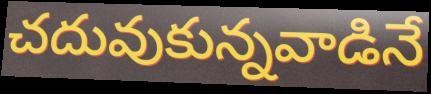
చదువుకున్నవాడినే